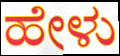
ಹೇಳು